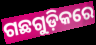
ଗଛଗୁଡ଼ିକରେ